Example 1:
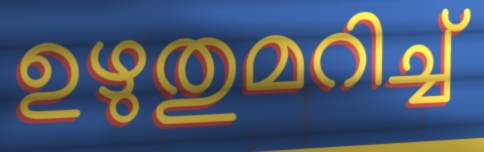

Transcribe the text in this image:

ഉഴുതുമറിച്ച്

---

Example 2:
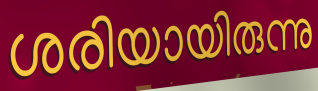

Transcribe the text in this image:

ശരിയായിരുന്നു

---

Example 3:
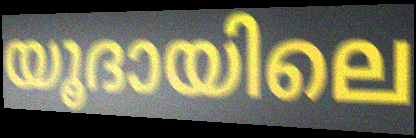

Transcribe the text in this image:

യൂദായിലെ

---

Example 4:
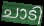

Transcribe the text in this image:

ചാടി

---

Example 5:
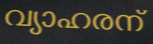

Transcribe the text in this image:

വ്യാഹരന്